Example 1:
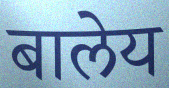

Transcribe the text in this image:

बालेय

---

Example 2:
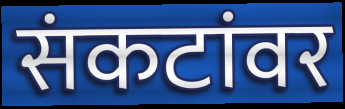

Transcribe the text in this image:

संकटांवर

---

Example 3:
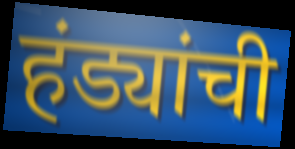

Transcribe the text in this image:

हंड्यांची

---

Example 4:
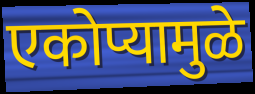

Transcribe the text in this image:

एकोप्यामुळे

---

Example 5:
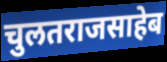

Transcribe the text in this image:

चुलतराजसाहेब